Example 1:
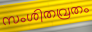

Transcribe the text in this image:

സംശിതവ്രതം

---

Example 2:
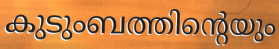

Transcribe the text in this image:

കുടുംബത്തിന്റെയും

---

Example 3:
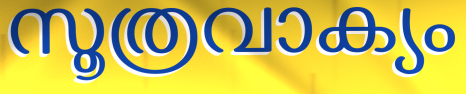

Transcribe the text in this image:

സൂത്രവാക്യം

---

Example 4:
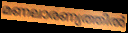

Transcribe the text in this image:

മണലാരണ്യത്തിൽ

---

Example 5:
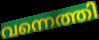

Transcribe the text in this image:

വന്നെത്തി